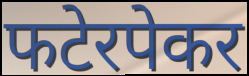
फटेरपेकर